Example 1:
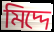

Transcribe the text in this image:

মিদ্দে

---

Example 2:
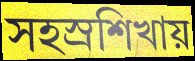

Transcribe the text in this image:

সহস্রশিখায়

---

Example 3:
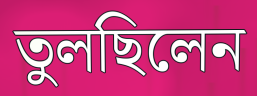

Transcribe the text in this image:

তুলছিলেন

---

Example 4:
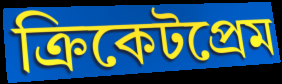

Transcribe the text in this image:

ক্রিকেটপ্রেম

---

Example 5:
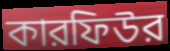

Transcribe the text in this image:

কারফিউর